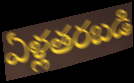
ఏళ్లతరబడి